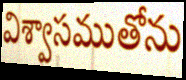
విశ్వాసముతోను